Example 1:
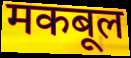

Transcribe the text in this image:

मकबूल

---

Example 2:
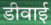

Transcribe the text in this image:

डीवाई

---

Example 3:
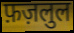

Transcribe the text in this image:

फ़ज़लुल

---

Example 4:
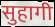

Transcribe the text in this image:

सुहागी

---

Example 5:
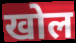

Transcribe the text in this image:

खोल